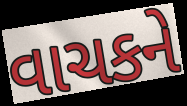
વાચકને